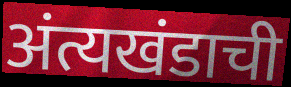
अंत्यखंडाची